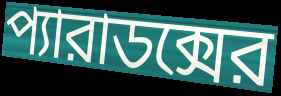
প্যারাডক্সের